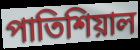
পাতিশিয়াল